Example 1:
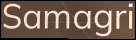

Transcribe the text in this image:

Samagri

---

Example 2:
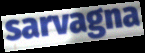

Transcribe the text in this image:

sarvagna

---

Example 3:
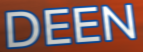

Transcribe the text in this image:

DEEN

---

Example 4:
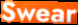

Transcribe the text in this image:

Swear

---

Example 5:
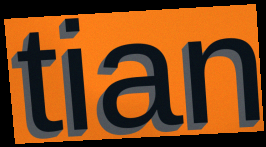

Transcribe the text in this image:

tian